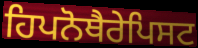
ਹਿਪਨੋਥੈਰੇਪਿਸਟ